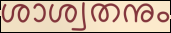
ശാശ്വതനും